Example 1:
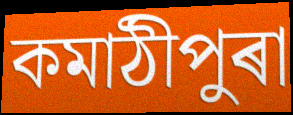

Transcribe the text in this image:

কমাঠীপুৰা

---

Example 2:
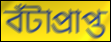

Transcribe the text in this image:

বঁটাপ্ৰাপ্ত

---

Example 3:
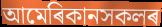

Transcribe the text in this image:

আমেৰিকানসকলৰ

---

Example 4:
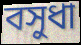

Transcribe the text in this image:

বসুধা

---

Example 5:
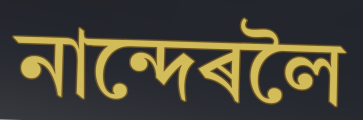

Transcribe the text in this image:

নান্দেৰলৈ